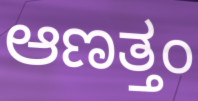
ಆಣತ್ತಂ